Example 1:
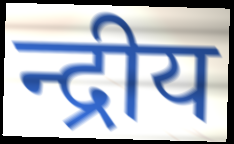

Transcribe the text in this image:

न्द्रीय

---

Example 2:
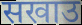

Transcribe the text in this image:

सखाउ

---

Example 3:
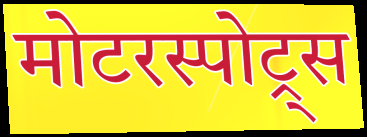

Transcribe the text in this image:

मोटरस्पोट्र्स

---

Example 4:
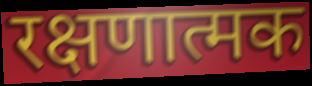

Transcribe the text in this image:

रक्षणात्मक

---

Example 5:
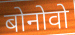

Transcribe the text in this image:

बोनोवो